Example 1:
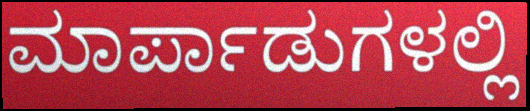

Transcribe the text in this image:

ಮಾರ್ಪಾಡುಗಳಲ್ಲಿ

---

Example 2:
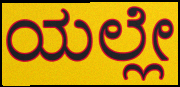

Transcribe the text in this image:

ಯಲ್ಲೇ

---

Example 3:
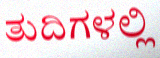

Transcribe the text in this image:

ತುದಿಗಳಲ್ಲಿ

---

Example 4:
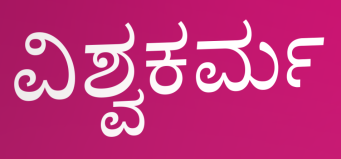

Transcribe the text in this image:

ವಿಶ್ವಕರ್ಮ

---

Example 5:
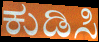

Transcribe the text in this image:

ಕುಡಿಸಿ